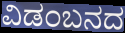
ವಿಡಂಬನದ